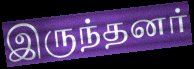
இருந்தனர்